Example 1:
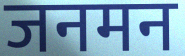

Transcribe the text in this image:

जनमन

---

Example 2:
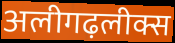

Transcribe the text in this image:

अलीगढ़लीक्स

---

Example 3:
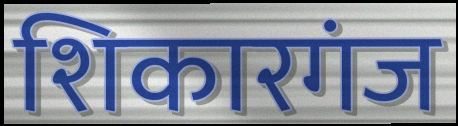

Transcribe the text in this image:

शिकारगंज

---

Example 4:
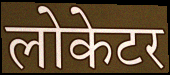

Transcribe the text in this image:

लोकेटर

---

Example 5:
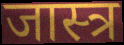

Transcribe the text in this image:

जास्त्र